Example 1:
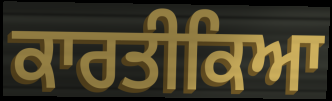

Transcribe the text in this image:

ਕਾਰਤੀਕਿਆ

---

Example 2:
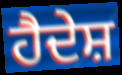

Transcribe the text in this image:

ਹੈਦੇਸ਼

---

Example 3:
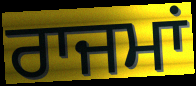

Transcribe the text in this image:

ਰਾਜਮਾਂ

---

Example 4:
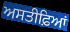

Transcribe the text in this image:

ਅਸਤੀਫ਼ਿਆਂ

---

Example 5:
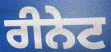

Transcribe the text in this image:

ਰੀਨੇਟ